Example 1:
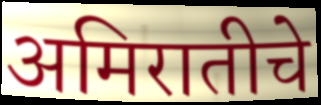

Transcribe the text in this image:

अमिरातीचे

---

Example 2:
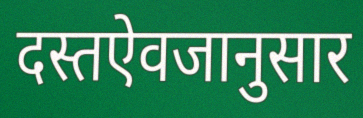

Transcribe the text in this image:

दस्तऐवजानुसार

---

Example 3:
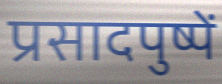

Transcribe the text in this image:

प्रसादपुष्पें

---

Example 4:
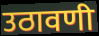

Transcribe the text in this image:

उठावणी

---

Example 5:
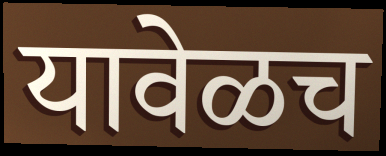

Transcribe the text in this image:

यावेळच